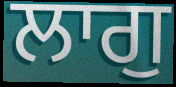
ਲਾਗੁ